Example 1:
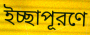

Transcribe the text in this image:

ইচ্ছাপূরণে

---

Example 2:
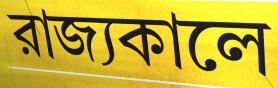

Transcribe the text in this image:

রাজ্যকালে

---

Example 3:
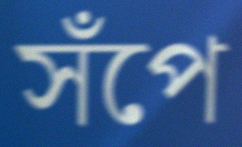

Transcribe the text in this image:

সঁপে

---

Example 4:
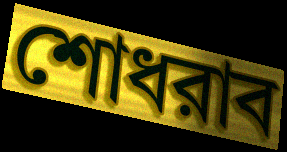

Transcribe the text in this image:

শোধরাব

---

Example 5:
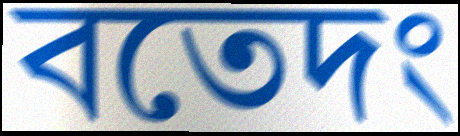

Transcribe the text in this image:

বতেদং